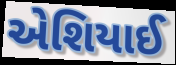
એશિયાઈ